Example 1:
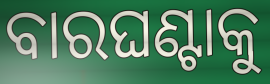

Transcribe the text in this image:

ବାରଘଣ୍ଟାକୁ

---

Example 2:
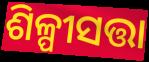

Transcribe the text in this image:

ଶିଳ୍ପୀସତ୍ତା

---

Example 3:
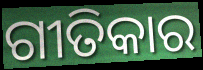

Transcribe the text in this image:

ଗୀତିକାର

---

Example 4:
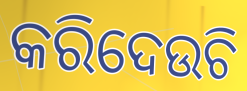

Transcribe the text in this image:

କରିଦେଉଚି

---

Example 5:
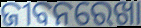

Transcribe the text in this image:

ଜୀବନରେଖା